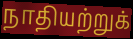
நாதியற்றுக்